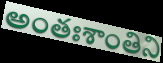
అంతఃశాంతిని